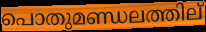
പൊതുമണ്ഡലത്തില്